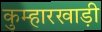
कुम्हारखाड़ी